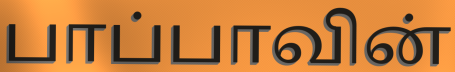
பாப்பாவின்